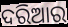
ଦରିଆର